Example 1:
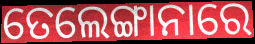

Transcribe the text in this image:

ତେଲେଙ୍ଗାନାରେ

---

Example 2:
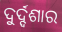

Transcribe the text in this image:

ଦୁର୍ଦ୍ଦଶାର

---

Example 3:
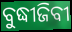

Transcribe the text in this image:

ବୁଦ୍ଧୀଜିବୀ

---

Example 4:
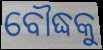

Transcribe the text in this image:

ବୌଦ୍ଧକୁ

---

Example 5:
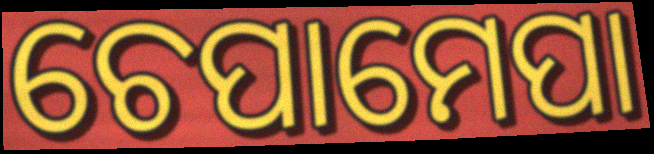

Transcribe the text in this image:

ଚେପାମେପା